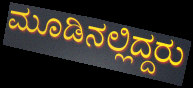
ಮೂಡಿನಲ್ಲಿದ್ದರು